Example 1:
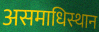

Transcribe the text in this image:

असमाधिस्थान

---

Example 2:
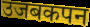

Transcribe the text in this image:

उजबकपन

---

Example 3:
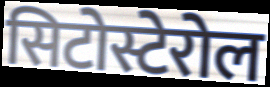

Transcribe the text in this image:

सिटोस्टेरोल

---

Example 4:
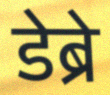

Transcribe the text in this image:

डेब्रे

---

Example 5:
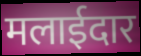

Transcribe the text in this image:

मलाईदार